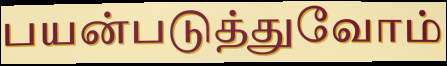
பயன்படுத்துவோம்